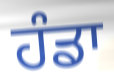
ਹੰਡਾ